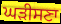
ਘੜੀਸਣਾ